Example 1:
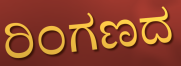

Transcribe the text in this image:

ರಿಂಗಣದ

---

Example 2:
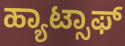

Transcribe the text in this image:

ಹ್ಯಾಟ್ಸಾಫ್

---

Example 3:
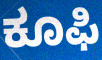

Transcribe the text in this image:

ಕೂಫಿ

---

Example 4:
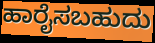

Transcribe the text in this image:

ಹಾರೈಸಬಹುದು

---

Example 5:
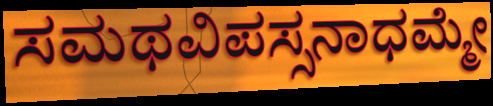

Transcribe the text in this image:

ಸಮಥವಿಪಸ್ಸನಾಧಮ್ಮೇ